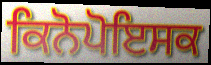
ਕਿਨੋਪੋਇਸਕ